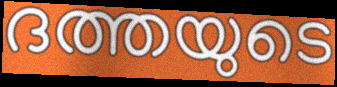
ദത്തയുടെ